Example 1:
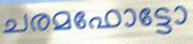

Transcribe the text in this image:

ചരമഫോട്ടോ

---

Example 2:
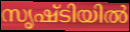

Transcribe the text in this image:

സൃഷ്ടിയിൽ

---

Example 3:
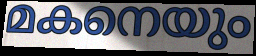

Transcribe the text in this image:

മകനെയും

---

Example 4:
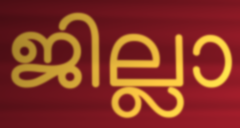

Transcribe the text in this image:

ജില്ലാ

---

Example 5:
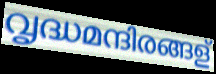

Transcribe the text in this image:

വൃദ്ധമന്ദിരങ്ങള്